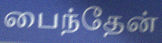
பைந்தேன்